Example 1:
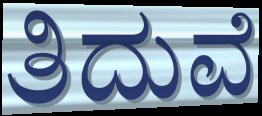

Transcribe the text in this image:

ತಿದುವೆ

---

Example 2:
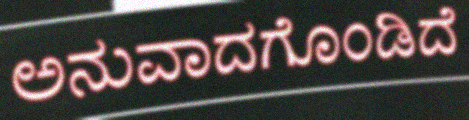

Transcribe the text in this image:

ಅನುವಾದಗೊಂಡಿದೆ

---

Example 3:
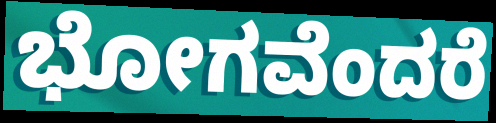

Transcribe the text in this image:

ಭೋಗವೆಂದರೆ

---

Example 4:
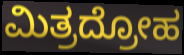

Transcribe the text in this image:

ಮಿತ್ರದ್ರೋಹ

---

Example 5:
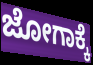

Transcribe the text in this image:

ಜೋಗಾಕ್ಕೆ